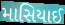
માસિયાઈ